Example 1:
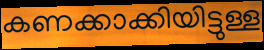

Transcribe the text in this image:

കണക്കാക്കിയിട്ടുള്ള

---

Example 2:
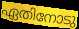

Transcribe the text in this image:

ഏതിനോടു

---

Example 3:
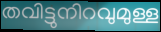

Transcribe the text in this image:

തവിട്ടുനിറവുമുള്ള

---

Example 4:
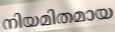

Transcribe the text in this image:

നിയമിതമായ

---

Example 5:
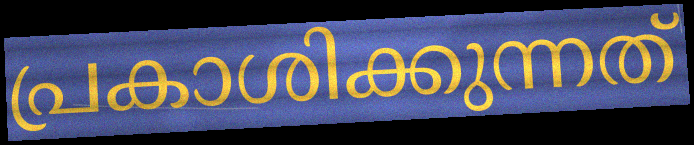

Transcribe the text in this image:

പ്രകാശിക്കുന്നത്